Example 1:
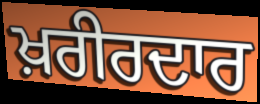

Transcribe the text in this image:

ਖ਼ਰੀਰਦਾਰ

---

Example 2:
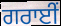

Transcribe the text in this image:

ਗਰਾਈਂ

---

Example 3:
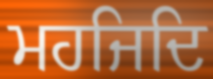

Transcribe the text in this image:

ਮਹਜਿਦਿ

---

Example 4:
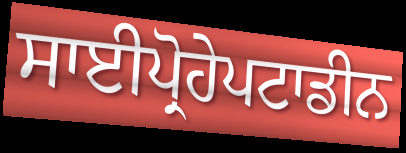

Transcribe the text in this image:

ਸਾਈਪ੍ਰੋਹੇਪਟਾਡੀਨ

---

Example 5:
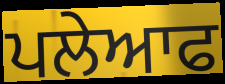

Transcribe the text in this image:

ਪਲੇਆਫ